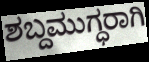
ಶಬ್ದಮುಗ್ಧರಾಗಿ